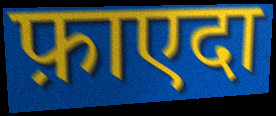
फ़ाएदा